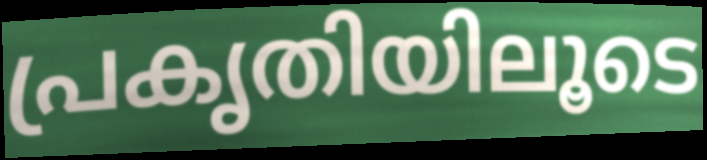
പ്രകൃതിയിലൂടെ